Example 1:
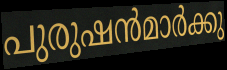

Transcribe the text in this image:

പുരുഷൻമാർക്കു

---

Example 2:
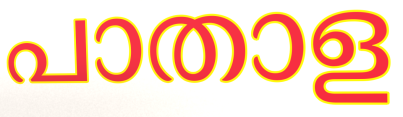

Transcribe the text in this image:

പാതാള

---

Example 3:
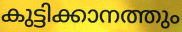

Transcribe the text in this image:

കുട്ടിക്കാനത്തും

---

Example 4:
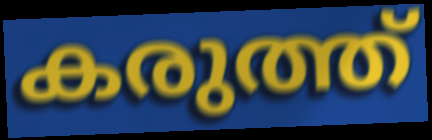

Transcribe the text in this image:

കരുത്ത്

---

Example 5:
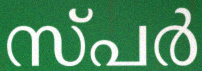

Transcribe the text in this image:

സ്പർ